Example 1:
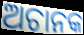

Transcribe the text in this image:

ଅଚାନକ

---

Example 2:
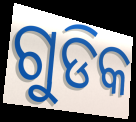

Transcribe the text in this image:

ଗୁଡିକ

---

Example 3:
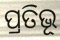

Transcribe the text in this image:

ପ୍ରତିଭୂ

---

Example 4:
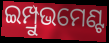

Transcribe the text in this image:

ଇମ୍ପ୍ରୁଭମେଣ୍ଟ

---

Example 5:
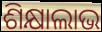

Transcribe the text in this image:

ଶିକ୍ଷାଲାଭ